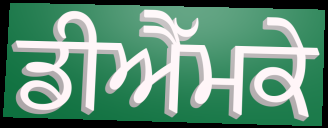
ਡੀਐੱਮਕੇ